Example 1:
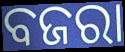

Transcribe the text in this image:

ବଜରା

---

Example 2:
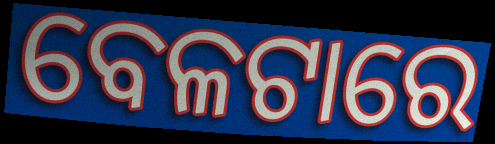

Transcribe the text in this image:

ବେଳଟାରେ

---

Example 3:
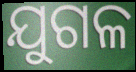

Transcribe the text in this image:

ଯୁଗଳ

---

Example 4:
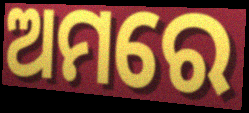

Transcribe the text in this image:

ଅମରେ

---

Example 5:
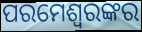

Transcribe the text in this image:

ପରମେଶ୍ଵରଙ୍କର